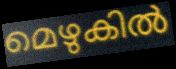
മെഴുകിൽ